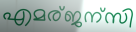
എമര്ജന്സി